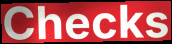
Checks